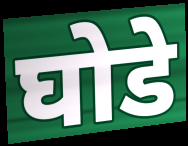
घोडे